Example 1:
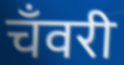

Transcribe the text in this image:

चँवरी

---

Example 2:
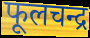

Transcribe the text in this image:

फूलचन्द्र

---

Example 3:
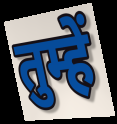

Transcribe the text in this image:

तुम्हें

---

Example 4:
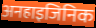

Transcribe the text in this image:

अनहाइजिनिक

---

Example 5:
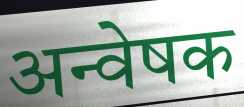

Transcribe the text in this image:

अन्वेषक